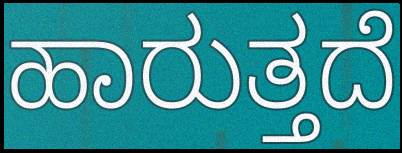
ಹಾರುತ್ತದೆ